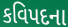
કવિપદના